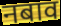
नबाव